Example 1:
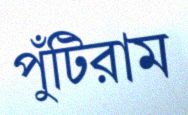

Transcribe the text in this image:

পুঁটিরাম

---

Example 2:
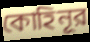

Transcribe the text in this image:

কোহিনূর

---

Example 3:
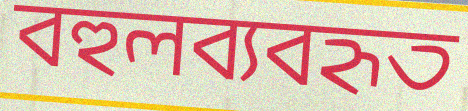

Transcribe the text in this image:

বহুলব্যবহৃত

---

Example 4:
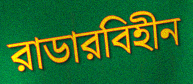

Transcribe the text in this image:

রাডারবিহীন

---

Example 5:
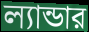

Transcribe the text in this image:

ল্যান্ডার